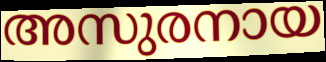
അസുരനായ